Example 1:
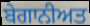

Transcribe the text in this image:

ਬੇਗਾਨੀਅਤ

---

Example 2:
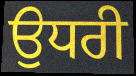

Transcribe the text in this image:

ਉਧਰੀ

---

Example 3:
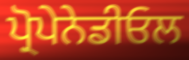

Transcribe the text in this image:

ਪ੍ਰੋਪੇਨੇਡੀਓਲ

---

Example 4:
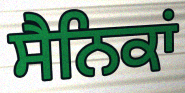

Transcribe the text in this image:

ਸੈਨਿਕਾਂ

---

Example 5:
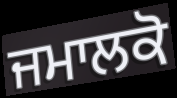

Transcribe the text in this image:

ਜਮਾਲਕੋ